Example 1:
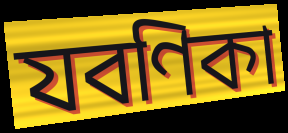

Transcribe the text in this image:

যবণিকা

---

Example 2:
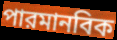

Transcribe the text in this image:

পারমানবিক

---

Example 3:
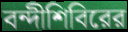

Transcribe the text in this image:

বন্দীশিবিরের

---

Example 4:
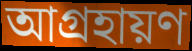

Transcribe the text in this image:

আগ্রহায়ণ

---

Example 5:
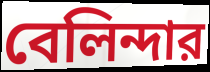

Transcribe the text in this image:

বেলিন্দার